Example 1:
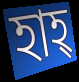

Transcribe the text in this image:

হাহ্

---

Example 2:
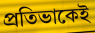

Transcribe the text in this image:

প্রতিভাকেই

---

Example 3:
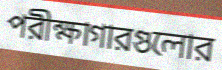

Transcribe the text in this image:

পরীক্ষাগারগুলোর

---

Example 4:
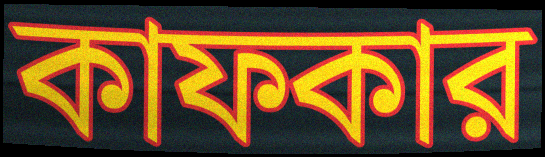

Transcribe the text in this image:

কাফকার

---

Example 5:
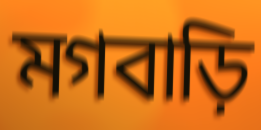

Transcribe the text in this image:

মগবাড়ি